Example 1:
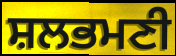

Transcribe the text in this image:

ਸ਼ਲਭਮਣੀ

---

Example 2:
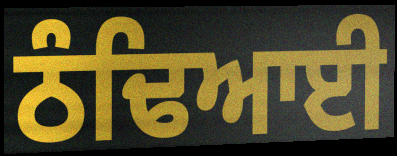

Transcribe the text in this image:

ਠੰਢਿਆਈ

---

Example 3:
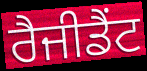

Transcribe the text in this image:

ਰੈਜੀਡੈਂਟ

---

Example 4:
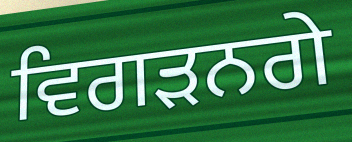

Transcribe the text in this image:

ਵਿਗੜਨਗੇ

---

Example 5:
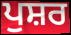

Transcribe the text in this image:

ਪੁਸ਼ਰ